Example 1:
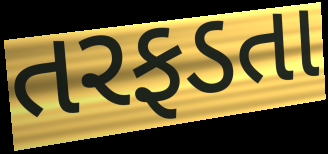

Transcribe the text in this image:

તરફડતા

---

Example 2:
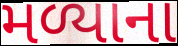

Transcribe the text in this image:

મળ્યાના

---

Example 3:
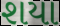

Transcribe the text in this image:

શયા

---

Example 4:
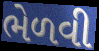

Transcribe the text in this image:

ભેળવી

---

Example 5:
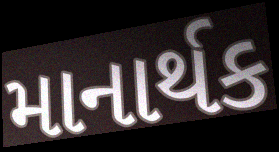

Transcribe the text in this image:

માનાર્થક